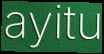
ayitu